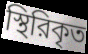
স্থিরিকৃত